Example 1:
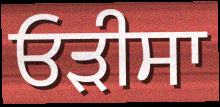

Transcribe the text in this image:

ਓੜੀਸਾ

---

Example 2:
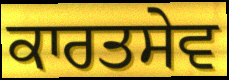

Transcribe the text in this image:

ਕਾਰਤਸੇਵ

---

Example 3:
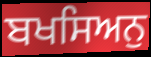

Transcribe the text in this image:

ਬਖਸਿਅਨੁ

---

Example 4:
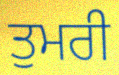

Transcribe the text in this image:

ਤੁਮਰੀ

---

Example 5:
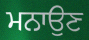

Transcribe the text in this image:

ਮਨਾਉਣ